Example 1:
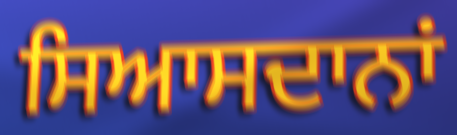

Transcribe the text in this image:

ਸਿਆਸਦਾਨਾਂ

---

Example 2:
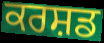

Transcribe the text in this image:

ਕਰਸ਼ਡ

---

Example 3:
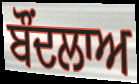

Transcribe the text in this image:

ਬੌਂਦਲਾਅ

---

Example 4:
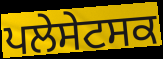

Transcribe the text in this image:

ਪਲੇਸੇਟਸਕ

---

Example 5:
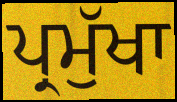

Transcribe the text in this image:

ਪ੍ਰਮੁੱਖਾ